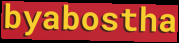
byabostha